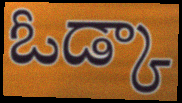
ఓడ్కా